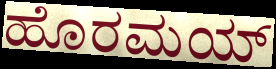
ಹೊರಮಯ್